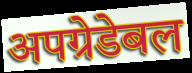
अपग्रेडेबल